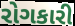
રોગકારી